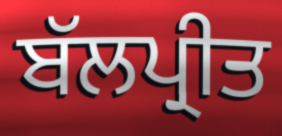
ਬੱਲਪ੍ਰੀਤ